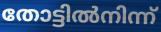
തോട്ടിൽനിന്ന്